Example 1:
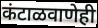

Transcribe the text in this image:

कंटाळवाणेही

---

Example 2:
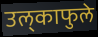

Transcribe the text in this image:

उल्काफुले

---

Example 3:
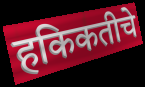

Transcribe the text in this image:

हकिकतीचे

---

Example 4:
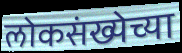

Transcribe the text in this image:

लोकसंख्‍येच्‍या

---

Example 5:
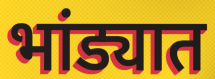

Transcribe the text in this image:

भांड्यात